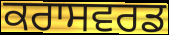
ਕਰਾਸਵਰਡ